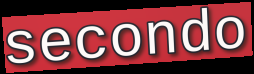
secondo